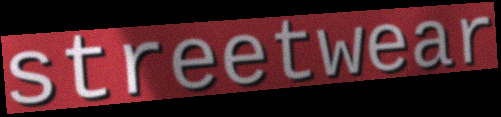
streetwear